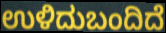
ಉಳಿದುಬಂದಿದೆ